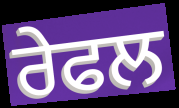
ਰੇਫਲ